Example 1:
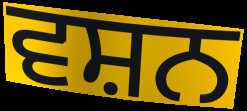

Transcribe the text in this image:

ਵਸ਼ਨ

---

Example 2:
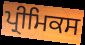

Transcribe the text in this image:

ਪ੍ਰੀਮਿਕਸ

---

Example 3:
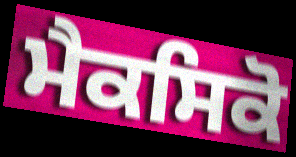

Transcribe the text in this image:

ਮੈਕਸਿਕੋ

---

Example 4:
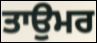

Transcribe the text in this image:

ਤਾਉਮਰ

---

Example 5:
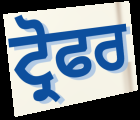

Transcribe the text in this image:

ਟ੍ਰੋਫਰ